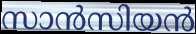
സാൻസിയൻ